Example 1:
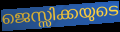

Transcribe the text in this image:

ജെസ്സിക്കയുടെ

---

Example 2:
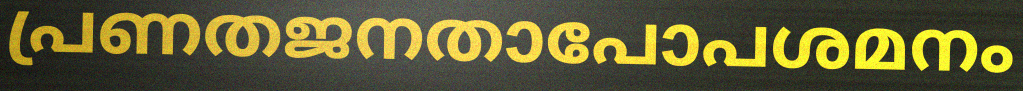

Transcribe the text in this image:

പ്രണതജനതാപോപശമനം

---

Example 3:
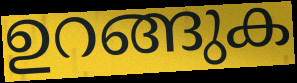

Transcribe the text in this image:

ഉറങ്ങുക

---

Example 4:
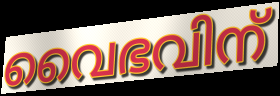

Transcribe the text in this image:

വൈഭവിന്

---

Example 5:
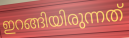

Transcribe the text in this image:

ഇറങ്ങിയിരുന്നത്